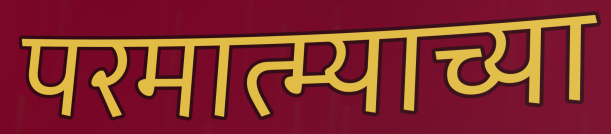
परमात्म्याच्या